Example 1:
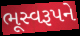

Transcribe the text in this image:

ભૂસ્વરૂપને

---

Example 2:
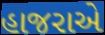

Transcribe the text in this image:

હાજરાએ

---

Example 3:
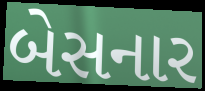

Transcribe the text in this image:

બેસનાર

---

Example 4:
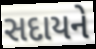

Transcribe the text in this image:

સદાયને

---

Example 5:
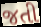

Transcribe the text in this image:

જતી